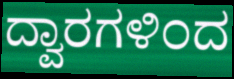
ದ್ವಾರಗಳಿಂದ